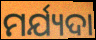
ମର୍ଯ୍ୟଦା